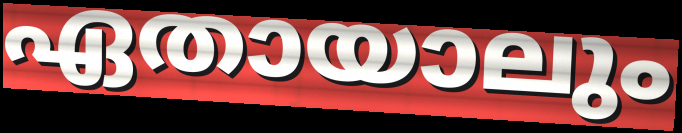
ഏതായാലും